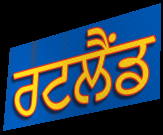
ਰਟਲੈਂਡ